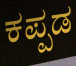
ಕಪ್ಪಡ